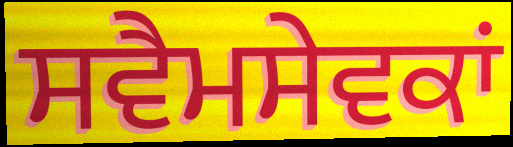
ਸਵੈਮਸੇਵਕਾਂ